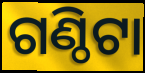
ଗଣ୍ଠିଟା